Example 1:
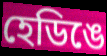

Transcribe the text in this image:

হেডিঙে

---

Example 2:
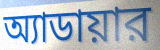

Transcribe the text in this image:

অ্যাডায়ার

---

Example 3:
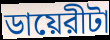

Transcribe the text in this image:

ডায়েরীটা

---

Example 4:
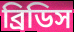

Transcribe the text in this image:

ব্রিডিস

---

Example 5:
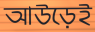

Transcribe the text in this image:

আউড়েই